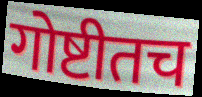
गोष्टीतच